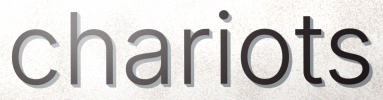
chariots